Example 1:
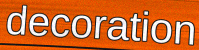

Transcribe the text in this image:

decoration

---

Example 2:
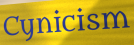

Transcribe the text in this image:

Cynicism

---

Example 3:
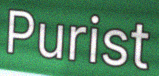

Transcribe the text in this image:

Purist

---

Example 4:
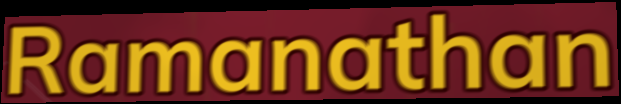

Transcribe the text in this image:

Ramanathan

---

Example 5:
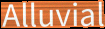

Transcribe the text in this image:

Alluvial